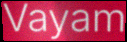
Vayam